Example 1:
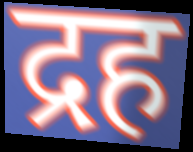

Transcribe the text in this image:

द्रह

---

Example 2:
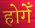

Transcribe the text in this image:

होगेँ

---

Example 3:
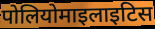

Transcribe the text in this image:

पोलियोमाइलाइटिस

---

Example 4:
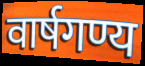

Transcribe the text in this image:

वार्षगण्य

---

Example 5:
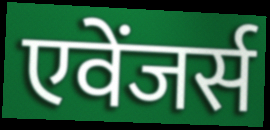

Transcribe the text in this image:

एवेंजर्स